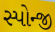
સ્પોન્જી